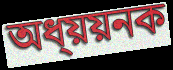
অধ্য়য়নক